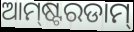
ଆମ୍‍ଷ୍ଟରଡାମ୍